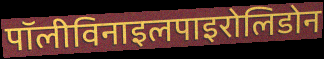
पॉलीविनाइलपाइरोलिडोन